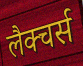
लैक्चर्स